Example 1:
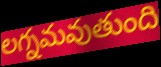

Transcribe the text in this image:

లగ్నమవుతుంది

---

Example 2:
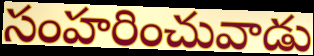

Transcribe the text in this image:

సంహరించువాడు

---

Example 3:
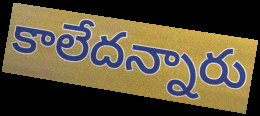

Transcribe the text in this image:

కాలేదన్నారు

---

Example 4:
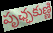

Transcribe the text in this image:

పృఛ్ఛకుణ్ణి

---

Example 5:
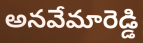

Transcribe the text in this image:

అనవేమారెడ్డి